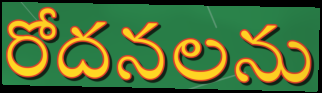
రోదనలను